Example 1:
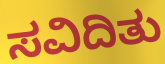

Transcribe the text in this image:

ಸವಿದಿತು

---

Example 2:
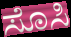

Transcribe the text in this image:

ಸೊಸಿ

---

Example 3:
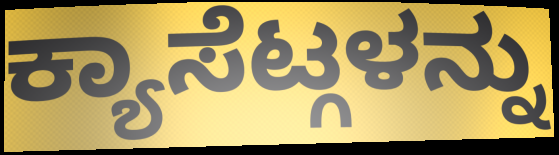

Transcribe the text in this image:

ಕ್ಯಾಸೆಟ್ಗಳನ್ನು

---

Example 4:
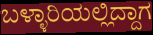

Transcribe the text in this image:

ಬಳ್ಳಾರಿಯಲ್ಲಿದ್ದಾಗ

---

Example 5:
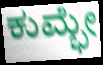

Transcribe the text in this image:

ಕುಮ್ಭೇ